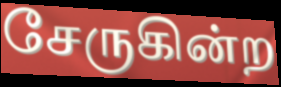
சேருகின்ற